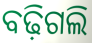
ବଢ଼ିଗଲି